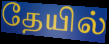
தேயில்